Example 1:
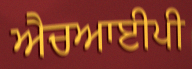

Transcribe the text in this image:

ਐਚਆਈਪੀ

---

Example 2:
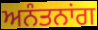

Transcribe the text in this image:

ਅਨੰਤਨਾਂਗ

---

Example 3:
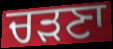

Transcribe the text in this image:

ਚੜਣਾ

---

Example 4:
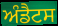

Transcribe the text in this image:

ਅੰਡੈਟਸ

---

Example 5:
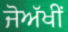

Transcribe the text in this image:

ਜੋਅੱਖੀਂ